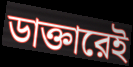
ডাক্তারেই